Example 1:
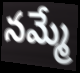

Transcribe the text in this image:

నమ్మే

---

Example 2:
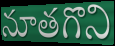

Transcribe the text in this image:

నూతగొని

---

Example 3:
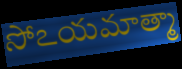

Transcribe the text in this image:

సోఽయమాత్మా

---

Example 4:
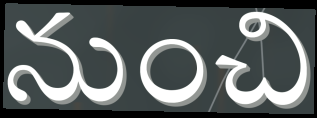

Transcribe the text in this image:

నుంచి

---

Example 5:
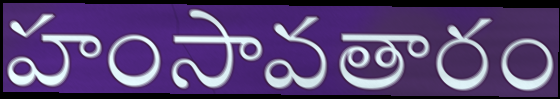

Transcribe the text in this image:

హంసావతారం